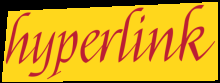
hyperlink